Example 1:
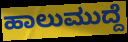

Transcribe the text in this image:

ಹಾಲುಮುದ್ದೆ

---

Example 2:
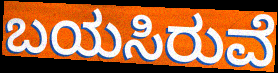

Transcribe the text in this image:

ಬಯಸಿರುವೆ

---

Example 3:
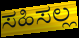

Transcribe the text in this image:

ಸಹಿಸಲ್ಲ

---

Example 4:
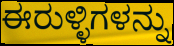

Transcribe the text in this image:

ಈರುಳ್ಳಿಗಳನ್ನು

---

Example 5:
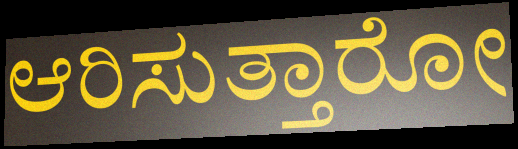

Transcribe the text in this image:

ಆರಿಸುತ್ತಾರೋ